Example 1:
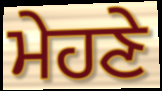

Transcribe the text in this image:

ਮੇਹਣੇ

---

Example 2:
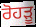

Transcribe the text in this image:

ਰੋਹੜੂ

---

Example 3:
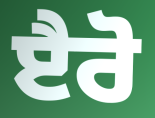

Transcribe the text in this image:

ੲੈਰੋ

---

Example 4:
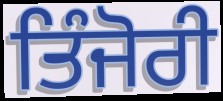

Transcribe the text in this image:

ਤਿੰਜੋਰੀ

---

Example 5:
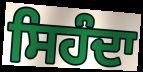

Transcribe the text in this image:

ਸਿਹੰਦਾ